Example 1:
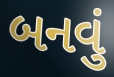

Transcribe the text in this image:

બનવું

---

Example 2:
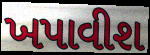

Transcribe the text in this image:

ખપાવીશ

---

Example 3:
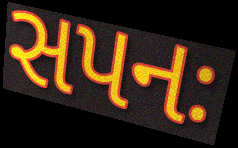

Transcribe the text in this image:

સપનઃ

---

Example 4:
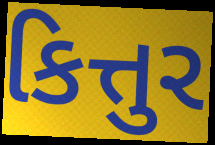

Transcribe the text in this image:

કિત્તુર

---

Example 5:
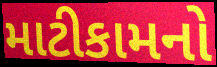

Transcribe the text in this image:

માટીકામનો